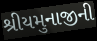
શ્રીયમુનાજીની